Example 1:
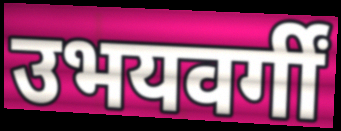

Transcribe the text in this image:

उभयवर्गीं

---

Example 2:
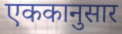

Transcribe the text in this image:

एककानुसार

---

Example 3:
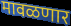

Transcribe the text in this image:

मावळणार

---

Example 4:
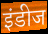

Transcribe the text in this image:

इंडीज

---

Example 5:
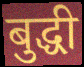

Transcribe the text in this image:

बुद्धी